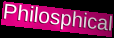
Philosphical